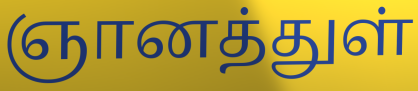
ஞானத்துள்